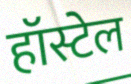
हॉस्टेल